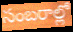
సంబరాల్లో